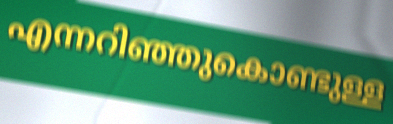
എന്നറിഞ്ഞുകൊണ്ടുള്ള